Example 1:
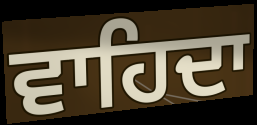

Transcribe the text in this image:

ਵਾਹਿਦਾ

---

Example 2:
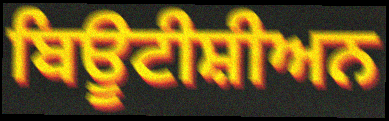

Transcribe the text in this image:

ਬਿਊਟੀਸ਼ੀਅਨ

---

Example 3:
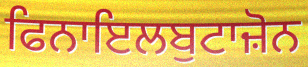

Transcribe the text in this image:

ਫਿਨਾਇਲਬੁਟਾਜ਼ੋਨ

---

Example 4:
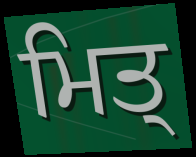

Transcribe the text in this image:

ਮਿਤ੍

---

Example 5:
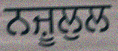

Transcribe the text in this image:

ਨਜ਼ੂਲੁਲ